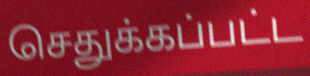
செதுக்கப்பட்ட